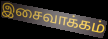
இசைவாக்கம்